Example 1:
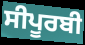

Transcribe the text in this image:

ਸੀਪੂਰਬੀ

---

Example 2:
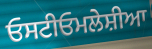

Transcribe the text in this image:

ਓਸਟੀਓਮਲੇਸ਼ੀਆ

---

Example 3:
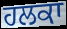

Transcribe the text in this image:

ਹਲਕਾ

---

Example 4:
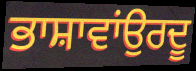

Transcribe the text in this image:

ਭਾਸ਼ਾਵਾਂਉਰਦੂ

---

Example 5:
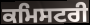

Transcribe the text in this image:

ਕਮਿਸਟਰੀ